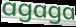
agaga